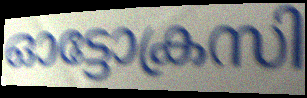
ഓട്ടോക്രസി